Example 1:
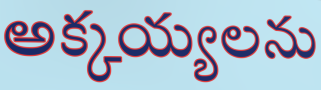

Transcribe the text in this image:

అక్కయ్యలను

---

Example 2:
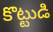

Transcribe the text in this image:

కొట్టుడి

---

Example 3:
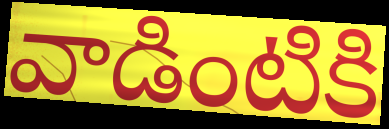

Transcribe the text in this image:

వాడింటికి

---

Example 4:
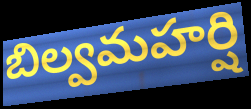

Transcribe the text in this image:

బిల్వమహర్షి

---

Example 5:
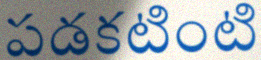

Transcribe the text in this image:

పడకటింటి